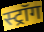
स्ट्रॉग